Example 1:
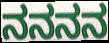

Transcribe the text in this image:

ನನನನ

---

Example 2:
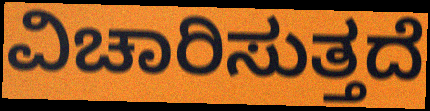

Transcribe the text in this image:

ವಿಚಾರಿಸುತ್ತದೆ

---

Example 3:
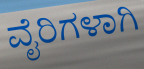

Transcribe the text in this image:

ವೈರಿಗಳಾಗಿ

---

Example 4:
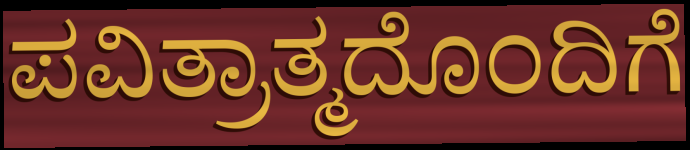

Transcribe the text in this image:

ಪವಿತ್ರಾತ್ಮದೊಂದಿಗೆ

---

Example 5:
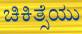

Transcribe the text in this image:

ಚಿಕಿತ್ಸೆಯು